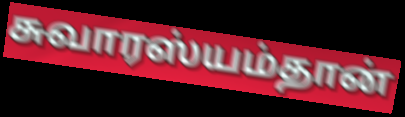
சுவாரஸ்யம்தான்